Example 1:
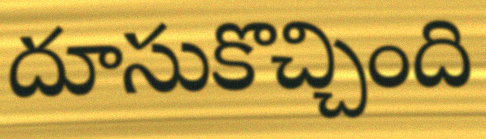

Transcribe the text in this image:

దూసుకొచ్చింది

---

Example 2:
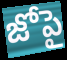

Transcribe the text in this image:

జోపై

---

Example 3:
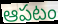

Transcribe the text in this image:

ఆపటం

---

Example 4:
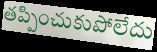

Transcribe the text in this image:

తప్పించుకుపోలేదు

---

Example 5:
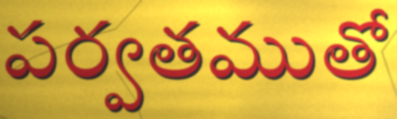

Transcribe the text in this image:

పర్వతముతో